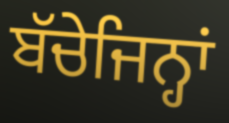
ਬੱਚੇਜਿਨ੍ਹਾਂ